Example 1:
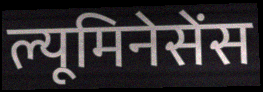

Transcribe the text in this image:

ल्यूमिनेसेंस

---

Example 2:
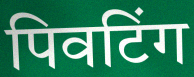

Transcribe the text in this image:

पिवटिंग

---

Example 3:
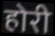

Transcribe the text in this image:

होरी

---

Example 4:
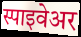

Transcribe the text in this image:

स्पाइवेअर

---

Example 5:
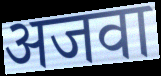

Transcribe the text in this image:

अजवा